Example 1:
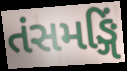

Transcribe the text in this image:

તંસમઙ્ગિં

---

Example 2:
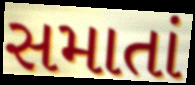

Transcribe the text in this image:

સમાતાં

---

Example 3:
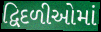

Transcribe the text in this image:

દ્વિદળીઓમાં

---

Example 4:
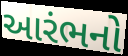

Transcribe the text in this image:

આરંભનો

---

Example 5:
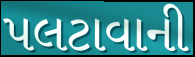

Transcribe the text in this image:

પલટાવાની